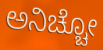
ಅನಿಚ್ಚೋ